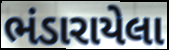
ભંડારાયેલા